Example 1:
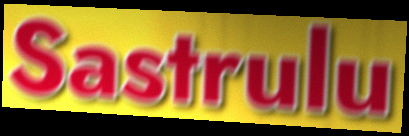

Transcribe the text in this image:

Sastrulu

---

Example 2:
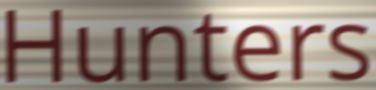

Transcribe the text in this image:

Hunters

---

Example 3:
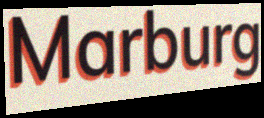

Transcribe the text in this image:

Marburg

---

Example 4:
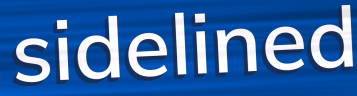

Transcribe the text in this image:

sidelined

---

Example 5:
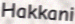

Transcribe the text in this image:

Hakkani